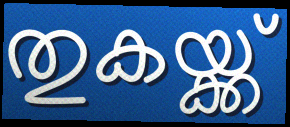
തുകയ്ക്ക്